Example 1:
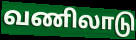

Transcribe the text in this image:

வணிலாடு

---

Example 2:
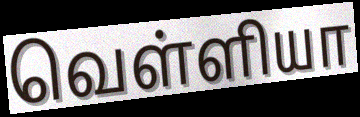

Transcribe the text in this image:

வெள்ளியா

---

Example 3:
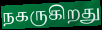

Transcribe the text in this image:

நகருகிறது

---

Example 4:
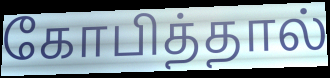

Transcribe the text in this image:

கோபித்தால்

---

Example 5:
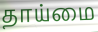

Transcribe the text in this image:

தாய்மை